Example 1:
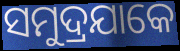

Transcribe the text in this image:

ସମୁଦ୍ରଯାକେ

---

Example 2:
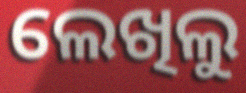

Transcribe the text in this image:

ଲେଖିଲୁ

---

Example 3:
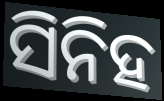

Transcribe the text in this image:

ସିନିହ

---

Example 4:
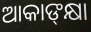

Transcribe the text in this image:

ଆକାଙ୍‍କ୍ଷା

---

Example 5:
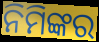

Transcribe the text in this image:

ନିମିଙ୍କର